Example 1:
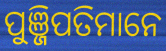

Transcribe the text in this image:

ପୁଞ୍ଜିପତିମାନେ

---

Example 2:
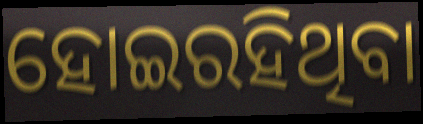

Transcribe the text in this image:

ହୋଇରହିଥିବା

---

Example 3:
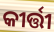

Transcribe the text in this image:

କୀର୍ତ୍ତୀ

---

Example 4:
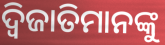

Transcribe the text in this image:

ଦ୍ୱିଜାତିମାନଙ୍କୁ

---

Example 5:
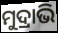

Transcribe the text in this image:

ମୁଦ୍ରାଭି